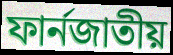
ফার্নজাতীয়